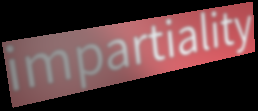
impartiality